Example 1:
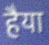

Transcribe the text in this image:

हैया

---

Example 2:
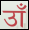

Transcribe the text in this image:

उाँ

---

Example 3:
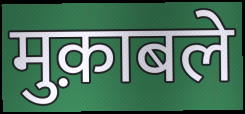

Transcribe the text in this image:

मुक़ाबले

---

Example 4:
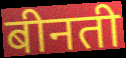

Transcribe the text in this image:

बीनती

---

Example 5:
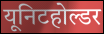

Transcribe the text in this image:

यूनिटहोल्डर